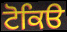
ਟੋਕਿੳ